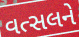
વત્સલને